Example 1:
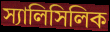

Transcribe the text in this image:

স্যালিসিলিক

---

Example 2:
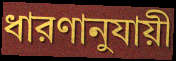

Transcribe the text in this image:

ধারণানুযায়ী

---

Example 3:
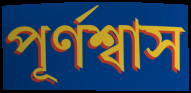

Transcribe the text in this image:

পূর্ণশ্বাস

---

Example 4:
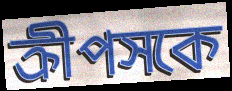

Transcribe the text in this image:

ক্রীপসকে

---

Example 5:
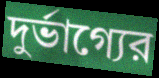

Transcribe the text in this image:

দুর্ভাগ্যের